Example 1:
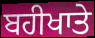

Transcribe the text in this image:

ਬਹੀਖਾਤੇ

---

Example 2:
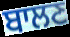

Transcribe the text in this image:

ਬਾਲਣ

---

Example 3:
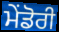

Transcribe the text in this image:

ਮੇਂਡੋਰੀ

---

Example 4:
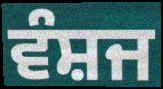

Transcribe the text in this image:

ਵੰਸ਼ਜ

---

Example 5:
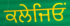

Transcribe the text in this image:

ਕਲੇਜਿਓਂ